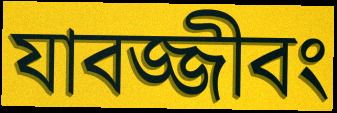
যাবজ্জীবং